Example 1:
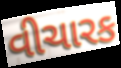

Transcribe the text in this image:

વીચારક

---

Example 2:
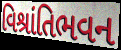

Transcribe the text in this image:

વિશ્રાંતિભવન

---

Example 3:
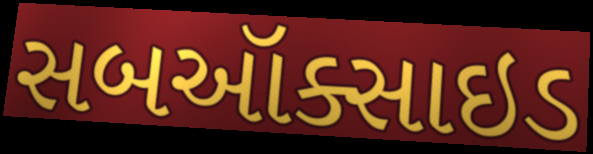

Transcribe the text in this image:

સબઑક્સાઇડ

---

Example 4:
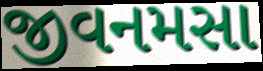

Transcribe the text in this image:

જીવનમસા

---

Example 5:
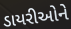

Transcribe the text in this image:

ડાયરીઓને